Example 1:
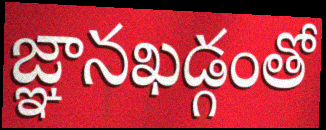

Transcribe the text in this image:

జ్ఞానఖడ్గంతో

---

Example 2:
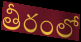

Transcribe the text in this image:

తీరంలో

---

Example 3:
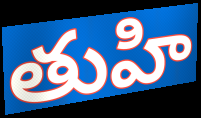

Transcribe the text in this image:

తుహి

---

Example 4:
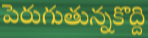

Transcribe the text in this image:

పెరుగుతున్నకొద్ది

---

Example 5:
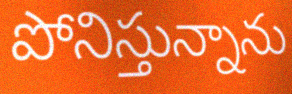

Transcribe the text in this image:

పోనిస్తున్నాను